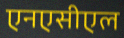
एनएसीएल